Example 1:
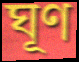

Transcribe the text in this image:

ঘূণ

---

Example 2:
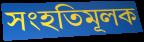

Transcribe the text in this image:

সংহতিমূলক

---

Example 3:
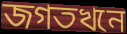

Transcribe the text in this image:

জগতখনে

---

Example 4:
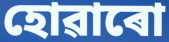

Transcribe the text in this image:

হোৱাৰো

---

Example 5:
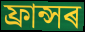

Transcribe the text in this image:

ফ্ৰান্সৰ